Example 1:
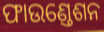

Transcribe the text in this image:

ଫାଉଣ୍ଡେଶନ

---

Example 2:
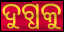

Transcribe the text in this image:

ଦୁଗ୍ଧକୁ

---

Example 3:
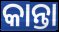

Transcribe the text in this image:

କାନ୍ତା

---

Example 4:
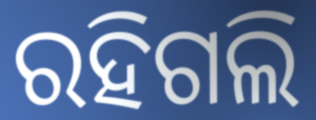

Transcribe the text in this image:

ରହିଗଲି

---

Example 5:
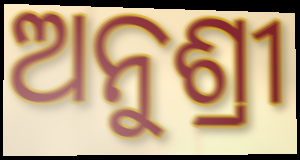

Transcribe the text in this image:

ଅନୁଶ୍ରୀ